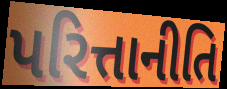
પરિત્તાનીતિ